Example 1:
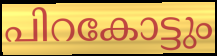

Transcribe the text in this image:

പിറകോട്ടും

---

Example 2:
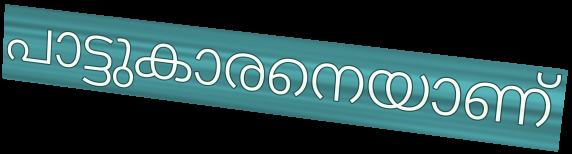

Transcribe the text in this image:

പാട്ടുകാരനെയാണ്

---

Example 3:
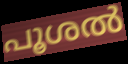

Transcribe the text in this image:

പൂശൽ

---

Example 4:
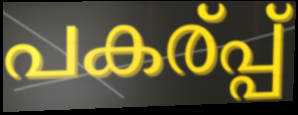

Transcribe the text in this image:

പകര്പ്പ്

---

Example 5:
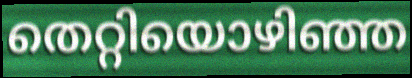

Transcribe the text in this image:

തെറ്റിയൊഴിഞ്ഞ